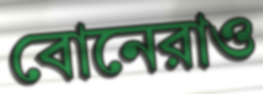
বোনেরাও